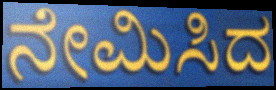
ನೇಮಿಸಿದ